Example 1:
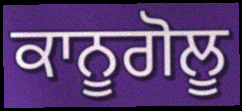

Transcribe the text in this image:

ਕਾਨੂਗੋਲੂ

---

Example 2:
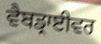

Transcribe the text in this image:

ਵੈਬਡ੍ਰਾਈਵਰ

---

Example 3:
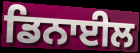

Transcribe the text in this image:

ਡਿਨਾਈਲ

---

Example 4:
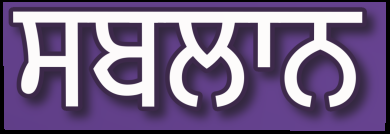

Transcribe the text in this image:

ਸਬਲਾਨ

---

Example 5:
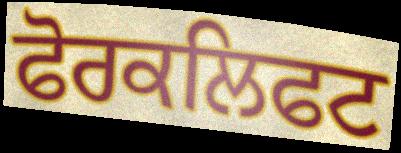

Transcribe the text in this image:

ਫੋਰਕਲਿਫਟ